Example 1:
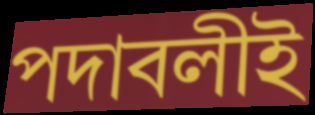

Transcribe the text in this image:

পদাবলীই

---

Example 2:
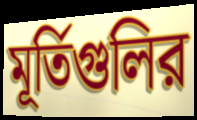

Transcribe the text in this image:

মূর্তিগুলির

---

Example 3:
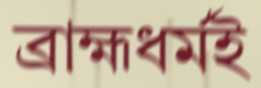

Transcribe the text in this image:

ব্রাহ্মধর্মই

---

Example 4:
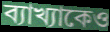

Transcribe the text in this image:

ব্যাখ্যাকেও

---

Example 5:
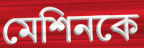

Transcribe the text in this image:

মেশিনকে